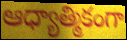
ఆధ్యాత్మికంగా